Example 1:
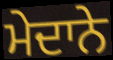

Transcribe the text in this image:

ਮੇਦਾਨੇ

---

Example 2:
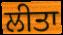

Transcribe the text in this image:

ਲੀਤਾ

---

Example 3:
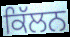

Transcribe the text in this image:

ਕਿੱਲਨ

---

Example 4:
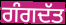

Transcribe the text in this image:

ਗੰਗਦੱਤ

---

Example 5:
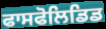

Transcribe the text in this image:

ਫਾਸਫੋਲਿਡਿਡ